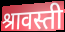
श्रावस्ती